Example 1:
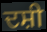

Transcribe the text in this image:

ਦਸ਼ੀ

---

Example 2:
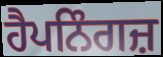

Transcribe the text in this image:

ਹੈਪਨਿੰਗਜ਼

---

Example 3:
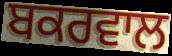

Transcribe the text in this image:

ਬਕਰਵਾਲ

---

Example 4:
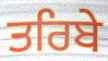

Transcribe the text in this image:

ਤਰਿਬੇ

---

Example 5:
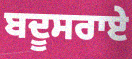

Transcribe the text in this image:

ਬਦੂਸਰਾਏ